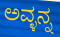
ಅವ್ಳನ್ನ